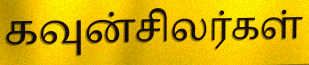
கவுன்சிலர்கள்